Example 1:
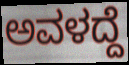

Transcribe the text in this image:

ಅವಳದ್ದೆ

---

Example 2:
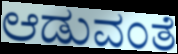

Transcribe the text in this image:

ಆಡುವಂತೆ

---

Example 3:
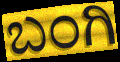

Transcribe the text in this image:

ಬಂಗಿ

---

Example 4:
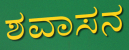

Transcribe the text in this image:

ಶವಾಸನ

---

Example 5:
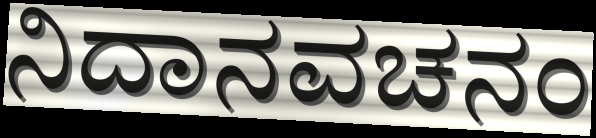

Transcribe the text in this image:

ನಿದಾನವಚನಂ